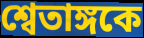
শ্বেতাঙ্গকে